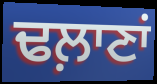
ਢਲ਼ਾਣਾਂ